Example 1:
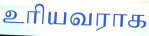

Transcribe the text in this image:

உரியவராக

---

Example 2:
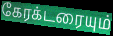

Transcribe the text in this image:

கேரக்டரையும்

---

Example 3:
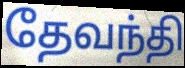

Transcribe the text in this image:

தேவந்தி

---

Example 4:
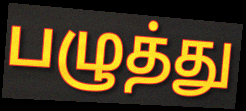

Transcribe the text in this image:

பழுத்து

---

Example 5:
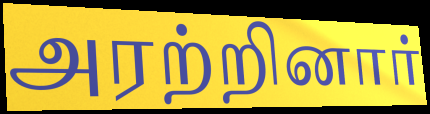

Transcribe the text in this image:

அரற்றினார்